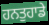
ਹਨਤੁਹਾਡੇ